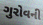
ગુરોવની